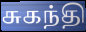
சுகந்தி